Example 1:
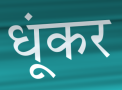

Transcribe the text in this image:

धूंकर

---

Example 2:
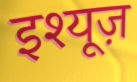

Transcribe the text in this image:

इश्यूज़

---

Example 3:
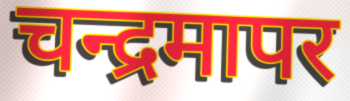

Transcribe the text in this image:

चन्द्रमापर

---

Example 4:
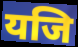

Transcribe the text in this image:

यजि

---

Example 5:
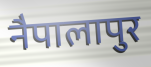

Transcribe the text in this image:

नैपालापुर